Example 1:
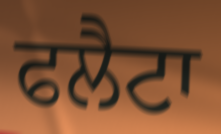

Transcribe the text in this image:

ਫਲੈਟਾ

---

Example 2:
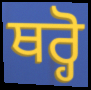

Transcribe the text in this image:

ਥਰ੍ਹੋ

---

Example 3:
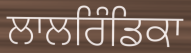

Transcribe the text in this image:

ਲਾਲਰਿੰਡਿਕਾ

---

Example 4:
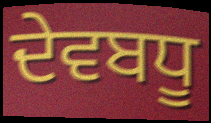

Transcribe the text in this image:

ਦੇਵਬਧੂ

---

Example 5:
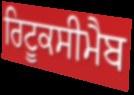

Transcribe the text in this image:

ਰਿਟੂਕਸੀਮੈਬ